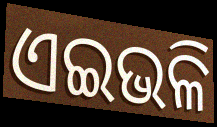
ଏଇଭଳି